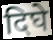
दिघे